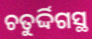
ଚତୁର୍ଦ୍ଦିଗସ୍ଥ